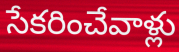
సేకరించేవాళ్లు